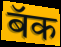
बॅक